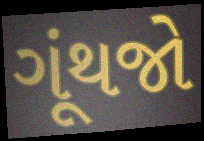
ગૂંથજો